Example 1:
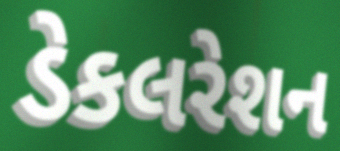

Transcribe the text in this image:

ડેકલરેશન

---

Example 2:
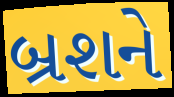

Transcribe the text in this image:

બ્રશને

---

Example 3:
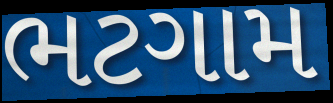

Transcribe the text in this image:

ભટગામ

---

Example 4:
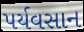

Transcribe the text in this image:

પર્યવસાન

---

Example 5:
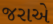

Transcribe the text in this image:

જરાએ